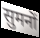
सुमनों